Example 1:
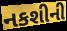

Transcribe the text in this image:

નકશીની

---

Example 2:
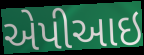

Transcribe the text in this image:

એપીઆઇ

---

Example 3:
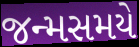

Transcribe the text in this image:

જન્મસમયે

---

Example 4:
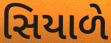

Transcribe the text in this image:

સિયાળે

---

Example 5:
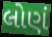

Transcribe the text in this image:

લોણં